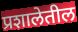
प्रशालेतील